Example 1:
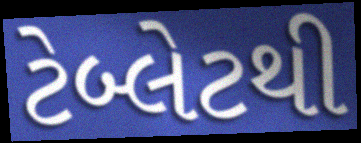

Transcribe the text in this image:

ટેબ્લેટથી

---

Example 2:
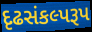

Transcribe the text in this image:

દૃઢસંકલ્પરૂપ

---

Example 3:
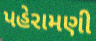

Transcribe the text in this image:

પહેરામણી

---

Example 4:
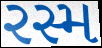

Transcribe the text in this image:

રસ્મ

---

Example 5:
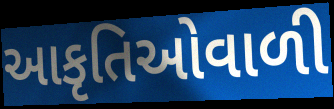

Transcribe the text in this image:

આકૃતિઓવાળી